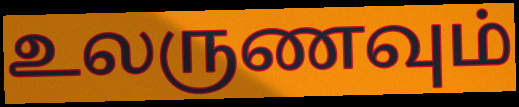
உலருணவும்